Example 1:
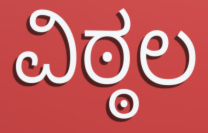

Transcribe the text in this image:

ವಿಠ್ಠಲ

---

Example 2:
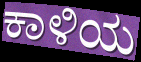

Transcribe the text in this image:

ಕಾಳಿಯ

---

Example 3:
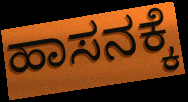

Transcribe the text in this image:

ಹಾಸನಕ್ಕೆ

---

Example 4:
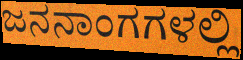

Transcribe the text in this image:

ಜನನಾಂಗಗಳಲ್ಲಿ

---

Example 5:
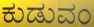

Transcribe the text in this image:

ಕುಡುವಂ